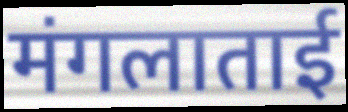
मंगलाताई